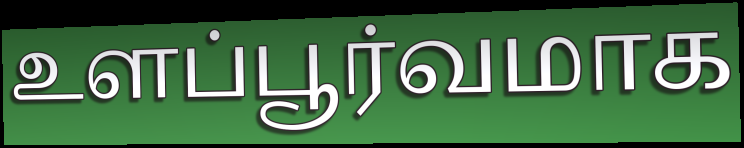
உளப்பூர்வமாக